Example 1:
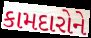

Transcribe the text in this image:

કામદારોને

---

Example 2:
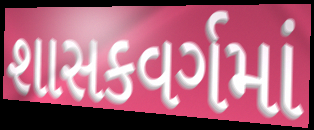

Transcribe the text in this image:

શાસકવર્ગમાં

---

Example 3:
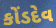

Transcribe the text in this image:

કોંડદેવ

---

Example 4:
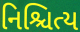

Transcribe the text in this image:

નિશ્ચિત્ય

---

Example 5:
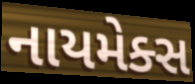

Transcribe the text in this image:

નાયમેક્સ